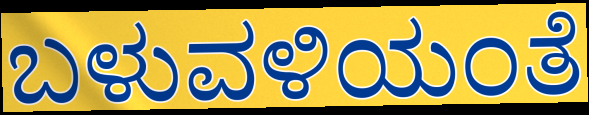
ಬಳುವಳಿಯಂತೆ